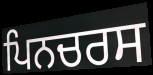
ਪਿਨਚਰਸ